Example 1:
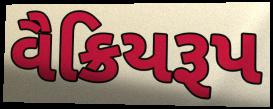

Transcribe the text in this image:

વૈક્રિયરૂપ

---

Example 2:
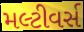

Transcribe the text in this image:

મલ્ટીવર્સ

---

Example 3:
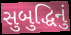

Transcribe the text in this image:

સુબુદ્ધિનું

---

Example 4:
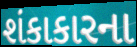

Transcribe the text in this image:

શંકાકારના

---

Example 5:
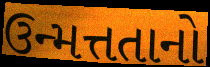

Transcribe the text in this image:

ઉન્મત્તતાનો